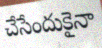
చేసేందుకైనా